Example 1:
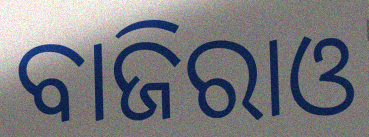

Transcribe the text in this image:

ବାଜିରାଓ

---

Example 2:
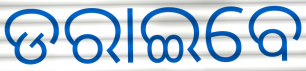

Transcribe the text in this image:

ଡରାଇବେ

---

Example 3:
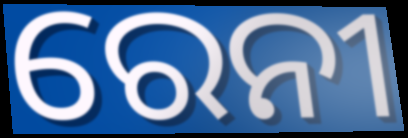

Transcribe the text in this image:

ରେନୀ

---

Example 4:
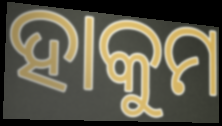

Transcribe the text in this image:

ହାକୁମ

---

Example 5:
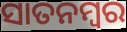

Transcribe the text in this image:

ସାତନମ୍ବର